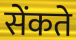
सेंकते